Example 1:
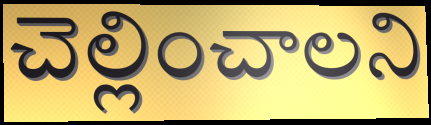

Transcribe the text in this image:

చెల్లించాలని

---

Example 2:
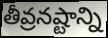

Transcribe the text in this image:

తీవ్రనష్టాన్ని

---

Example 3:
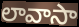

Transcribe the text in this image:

లావాసా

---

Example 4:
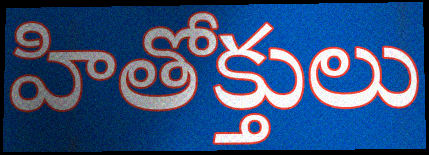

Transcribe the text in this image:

హితోక్తులు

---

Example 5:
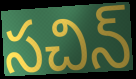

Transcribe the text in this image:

సచిన్